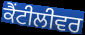
ਕੈਂਟੀਲੀਵਰ